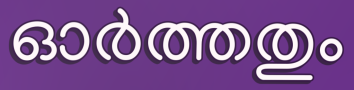
ഓർത്തതും